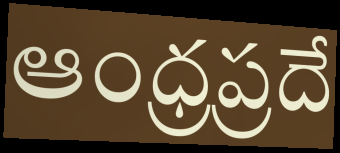
ఆంధ్రప్రదే